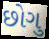
છોગુ